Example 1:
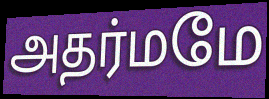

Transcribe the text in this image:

அதர்மமே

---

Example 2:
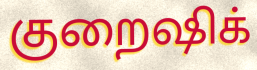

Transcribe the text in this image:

குறைஷிக்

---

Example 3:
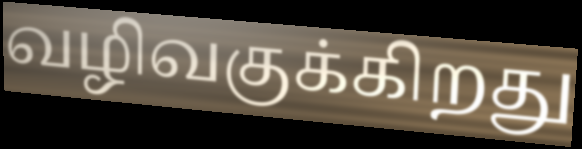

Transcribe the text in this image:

வழிவகுக்கிறது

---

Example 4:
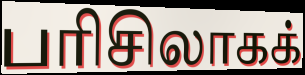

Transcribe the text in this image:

பரிசிலாகக்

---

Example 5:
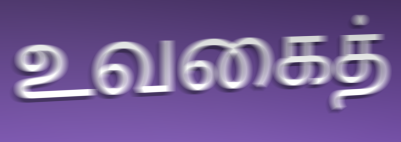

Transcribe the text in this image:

உவகைத்